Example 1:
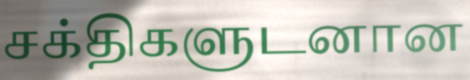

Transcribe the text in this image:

சக்திகளுடனான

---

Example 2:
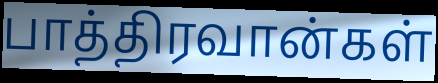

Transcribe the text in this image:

பாத்திரவான்கள்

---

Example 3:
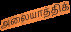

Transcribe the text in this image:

அலையாத்திக்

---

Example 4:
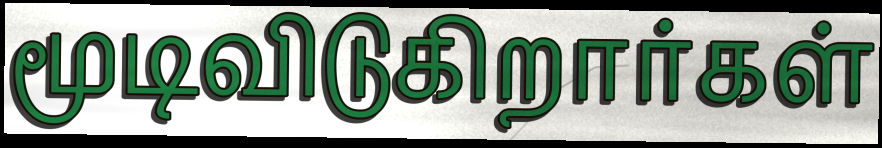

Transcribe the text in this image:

மூடிவிடுகிறார்கள்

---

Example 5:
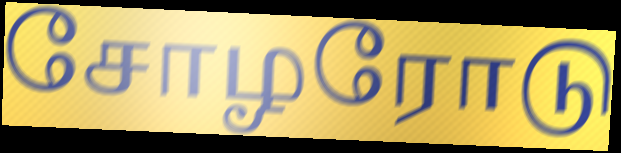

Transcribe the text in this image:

சோழரோடு